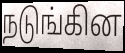
நடுங்கின